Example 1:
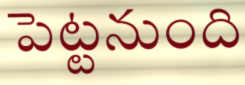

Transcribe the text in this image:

పెట్టనుంది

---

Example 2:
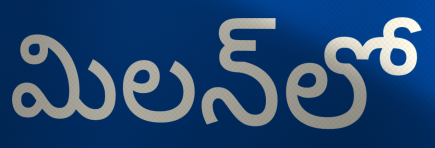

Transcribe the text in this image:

మిలన్‌లో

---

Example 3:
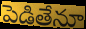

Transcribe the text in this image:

పెడితేనూ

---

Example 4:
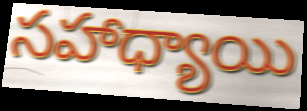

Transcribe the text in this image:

సహాధ్యాయి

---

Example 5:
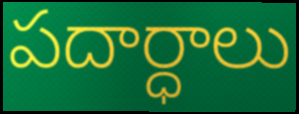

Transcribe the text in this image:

పదార్ధాలు